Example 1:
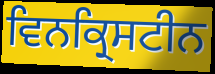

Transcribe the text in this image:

ਵਿਨਕ੍ਰਿਸਟੀਨ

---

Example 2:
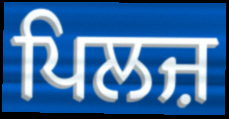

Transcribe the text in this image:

ਪਿਲਜ਼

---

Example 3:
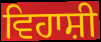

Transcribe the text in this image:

ਵਿਹਾਸ਼ੀ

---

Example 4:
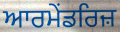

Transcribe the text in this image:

ਆਰਮੇਂਡਰਿਜ਼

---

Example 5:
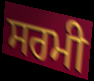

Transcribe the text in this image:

ਸਰਮੀ